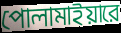
পোলামাইয়ারে